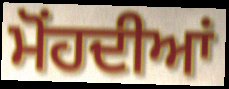
ਮੋਂਹਦੀਆਂ